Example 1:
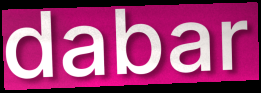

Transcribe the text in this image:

dabar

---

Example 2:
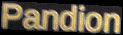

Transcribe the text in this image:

Pandion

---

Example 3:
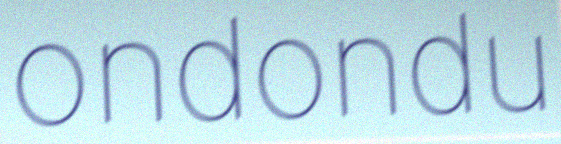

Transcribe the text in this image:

ondondu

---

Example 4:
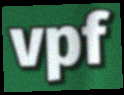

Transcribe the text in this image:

vpf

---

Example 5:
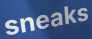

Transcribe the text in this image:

sneaks